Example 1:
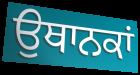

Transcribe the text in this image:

ਉਥਾਨਕਾਂ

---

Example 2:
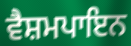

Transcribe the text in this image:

ਵੈਸ਼ਮਪਾਇਨ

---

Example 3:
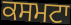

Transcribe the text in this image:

ਕਸਮਟਾ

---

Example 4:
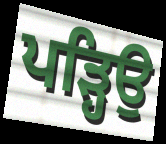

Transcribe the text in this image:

ਪੜ੍ਹਿਉ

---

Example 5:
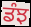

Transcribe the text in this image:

ਡੰਝ